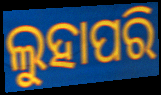
ଲୁହାପରି